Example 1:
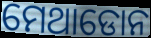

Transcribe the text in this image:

ମେଥାଡୋନ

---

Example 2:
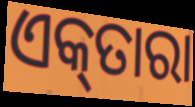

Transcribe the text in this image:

ଏକ୍‌ତାରା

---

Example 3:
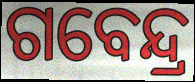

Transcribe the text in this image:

ଗବେନ୍ଦ୍ର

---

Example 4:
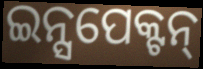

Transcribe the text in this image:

ଇନ୍ସପେକ୍ଟନ୍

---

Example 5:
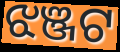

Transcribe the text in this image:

ଝଞ୍ଜଟ